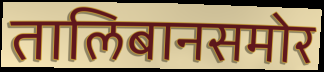
तालिबानसमोर